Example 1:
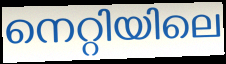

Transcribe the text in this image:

നെറ്റിയിലെ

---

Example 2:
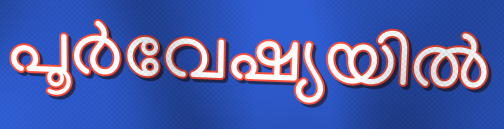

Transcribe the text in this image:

പൂർവേഷ്യയിൽ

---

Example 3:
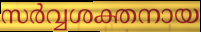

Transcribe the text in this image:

സർവ്വശക്തനായ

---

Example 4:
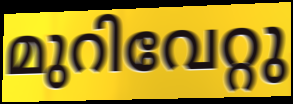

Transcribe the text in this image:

മുറിവേറ്റു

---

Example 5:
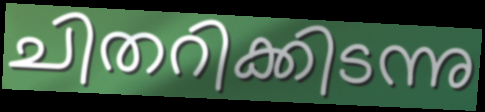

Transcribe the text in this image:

ചിതറിക്കിടന്നു